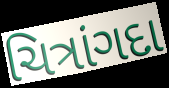
ચિત્રાંગદા